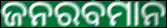
ଜନରବମାନ